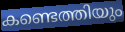
കണ്ടെത്തിയും